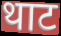
थाट